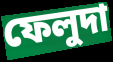
ফেলুদা